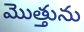
మొత్తును